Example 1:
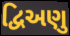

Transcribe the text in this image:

દ્વિઅણુ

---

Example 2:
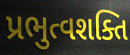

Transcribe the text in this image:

પ્રભુત્વશક્તિ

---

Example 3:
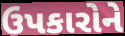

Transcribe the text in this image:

ઉપકારોને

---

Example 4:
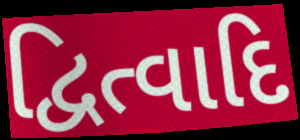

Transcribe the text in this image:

દ્વિત્વાદિ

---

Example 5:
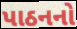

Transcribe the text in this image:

પાઠનનો